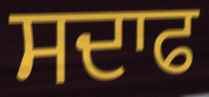
ਸਦਾਫ